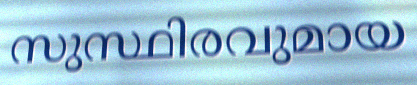
സുസ്ഥിരവുമായ